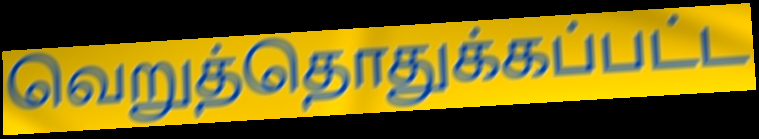
வெறுத்தொதுக்கப்பட்ட